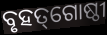
ବୃହତ୍‌ଗୋଷ୍ଠୀ